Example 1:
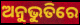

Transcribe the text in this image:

ଅନୁଭୁତିରେ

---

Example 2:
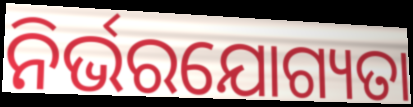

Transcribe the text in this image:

ନିର୍ଭରଯୋଗ୍ୟତା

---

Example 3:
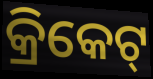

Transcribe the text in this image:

କ୍ରିକେଟ୍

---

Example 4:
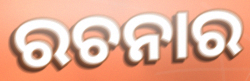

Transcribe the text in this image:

ରଚନାର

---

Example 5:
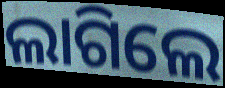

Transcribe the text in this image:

ଲାଗିଲେ